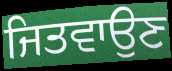
ਜਿਤਵਾਉਣ